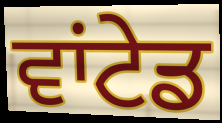
ਵਾਂਟੇਡ